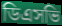
ডিএসভি